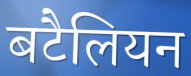
बटैलियन